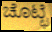
ಚೊಟ್ಟೆ